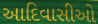
આદિવાસીઓ